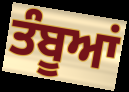
ਤੰਬੂਆਂ